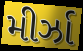
મીર્ઝા